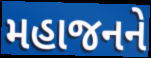
મહાજનને